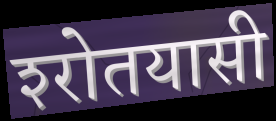
श्रोतयासी